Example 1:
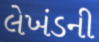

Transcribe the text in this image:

લેખંડની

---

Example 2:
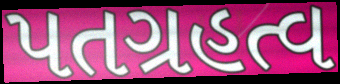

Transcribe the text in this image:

પતગ્રહત્વ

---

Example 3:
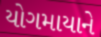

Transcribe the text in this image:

યોગમાયાને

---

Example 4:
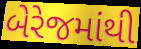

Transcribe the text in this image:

બેરેજમાંથી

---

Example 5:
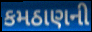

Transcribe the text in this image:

કમઠાણની